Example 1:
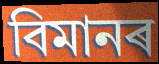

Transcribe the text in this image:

বিমানৰ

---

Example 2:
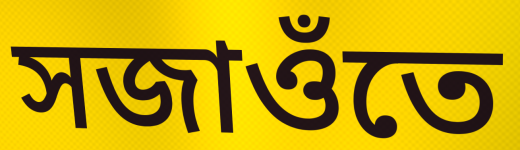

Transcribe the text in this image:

সজাওঁতে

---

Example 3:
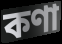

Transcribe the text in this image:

কণা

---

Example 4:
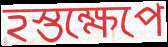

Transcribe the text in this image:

হস্তক্ষেপে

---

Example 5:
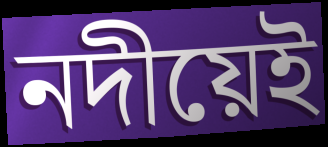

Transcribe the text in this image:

নদীয়েই